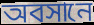
অবসানে